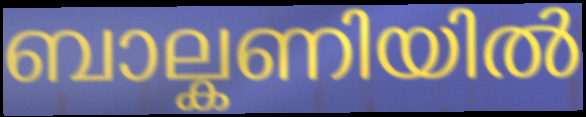
ബാല്കണിയിൽ